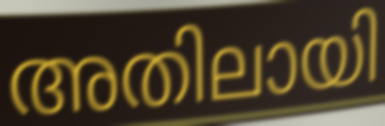
അതിലായി